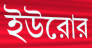
ইউরোর